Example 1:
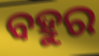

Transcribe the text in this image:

ବହୁର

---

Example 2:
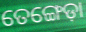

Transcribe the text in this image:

ତେଙ୍ଗେଡ଼ା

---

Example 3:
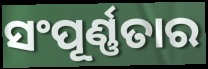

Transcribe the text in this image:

ସଂପୂର୍ଣ୍ଣତାର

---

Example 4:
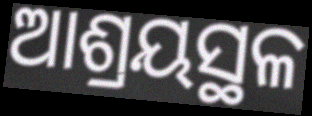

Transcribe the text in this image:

ଆଶ୍ରୟସ୍ଥଳ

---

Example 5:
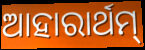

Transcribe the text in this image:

ଆହାରାର୍ଥମ୍